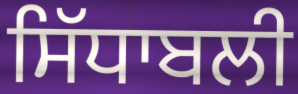
ਸਿੱਧਾਬਲੀ